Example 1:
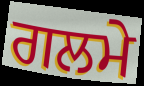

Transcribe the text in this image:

ਗਲਮੇ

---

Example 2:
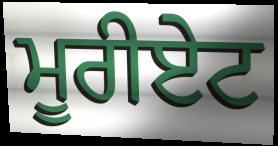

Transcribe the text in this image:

ਮੂਰੀਏਟ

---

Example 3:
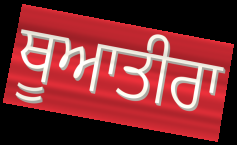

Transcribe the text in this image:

ਥੂਆਤੀਰਾ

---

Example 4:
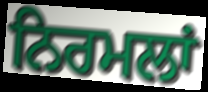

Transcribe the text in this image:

ਨਿਰਮਲਾਂ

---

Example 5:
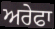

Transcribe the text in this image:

ਅਰੇਫਾ